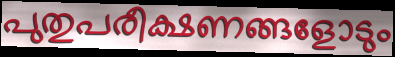
പുതുപരീക്ഷണങ്ങളോടും